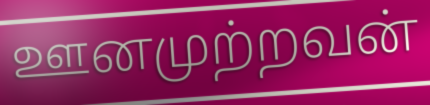
ஊனமுற்றவன்